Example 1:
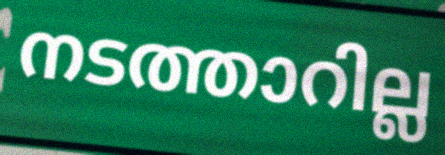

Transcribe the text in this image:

നടത്താറില്ല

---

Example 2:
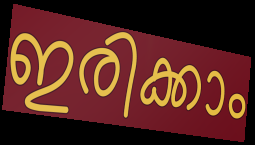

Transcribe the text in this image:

ഇരിക്കാം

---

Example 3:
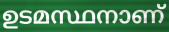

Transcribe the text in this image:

ഉടമസ്ഥനാണ്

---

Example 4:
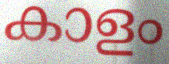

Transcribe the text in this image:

കാളം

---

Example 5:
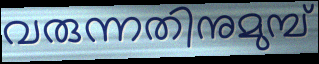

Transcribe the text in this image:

വരുന്നതിനുമുമ്പ്